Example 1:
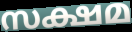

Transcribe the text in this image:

സക്ഷമ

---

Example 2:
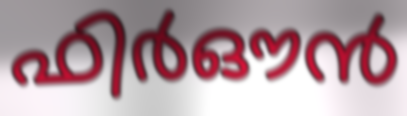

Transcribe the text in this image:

ഫിർഔൻ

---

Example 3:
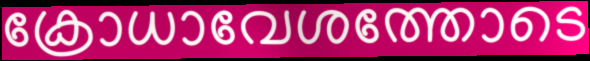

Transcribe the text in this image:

ക്രോധാവേശത്തോടെ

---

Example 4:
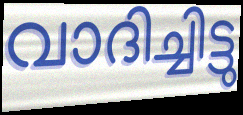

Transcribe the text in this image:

വാദിച്ചിട്ടു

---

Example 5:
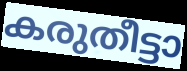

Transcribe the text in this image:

കരുതീട്ടാ